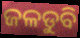
ଜଳଡୁବି